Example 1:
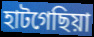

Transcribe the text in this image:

হাটগেছিয়া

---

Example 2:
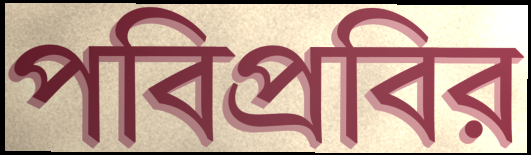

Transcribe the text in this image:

পবিপ্রবির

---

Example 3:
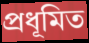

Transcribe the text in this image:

প্রধূমিত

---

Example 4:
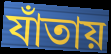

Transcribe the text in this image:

যাঁতায়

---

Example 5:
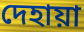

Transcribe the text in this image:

দেহায়া